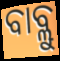
ବାବ୍ଲୁ